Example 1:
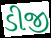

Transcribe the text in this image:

ડીજી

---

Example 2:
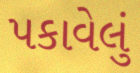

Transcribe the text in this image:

પકાવેલું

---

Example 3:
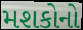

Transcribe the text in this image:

મશકોનો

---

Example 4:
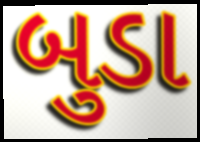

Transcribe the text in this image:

બુડા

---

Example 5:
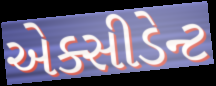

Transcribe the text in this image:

એક્સીડેન્ટ